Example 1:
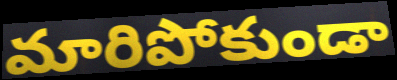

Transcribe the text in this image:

మారిపోకుండా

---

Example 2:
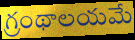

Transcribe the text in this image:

గ్రంథాలయమే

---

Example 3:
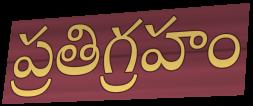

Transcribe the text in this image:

ప్రతిగ్రహం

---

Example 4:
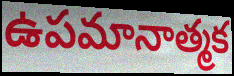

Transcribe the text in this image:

ఉపమానాత్మక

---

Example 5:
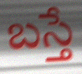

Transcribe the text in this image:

బస్తే